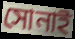
সোনাই